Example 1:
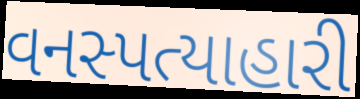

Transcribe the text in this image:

વનસ્પત્યાહારી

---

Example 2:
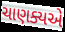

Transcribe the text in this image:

ચાણક્યએ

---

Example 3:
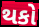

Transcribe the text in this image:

થકો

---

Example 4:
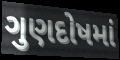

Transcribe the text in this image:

ગુણદોષમાં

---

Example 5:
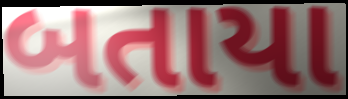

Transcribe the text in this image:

બતાયા